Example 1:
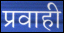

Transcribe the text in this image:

प्रवाही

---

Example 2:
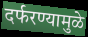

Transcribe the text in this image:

दर्फरण्यामुळे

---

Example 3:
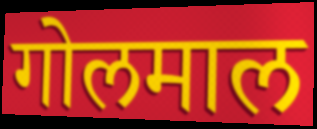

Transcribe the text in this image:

गोलमाल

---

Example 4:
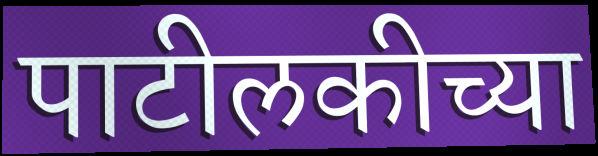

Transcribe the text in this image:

पाटीलकीच्या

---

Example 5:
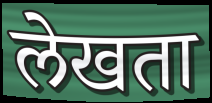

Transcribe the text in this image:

लेखता